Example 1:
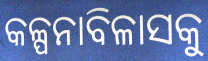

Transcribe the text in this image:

କଳ୍ପନାବିଳାସକୁ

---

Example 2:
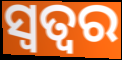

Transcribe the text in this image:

ସ୍ୱତ୍ୱର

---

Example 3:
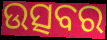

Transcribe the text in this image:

ଉତ୍ସବର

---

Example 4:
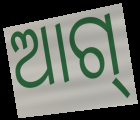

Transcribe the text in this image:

ଆଗ୍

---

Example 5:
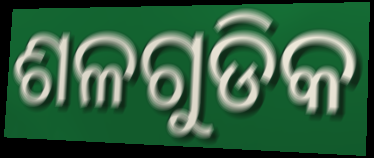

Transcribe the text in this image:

ଶଳଗୁଡିକ